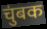
चुंबक